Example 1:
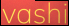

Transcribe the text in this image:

vashi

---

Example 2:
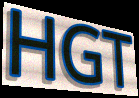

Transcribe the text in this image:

HGT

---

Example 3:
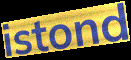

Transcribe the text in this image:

istond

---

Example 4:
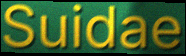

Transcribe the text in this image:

Suidae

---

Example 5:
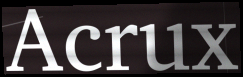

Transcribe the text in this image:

Acrux